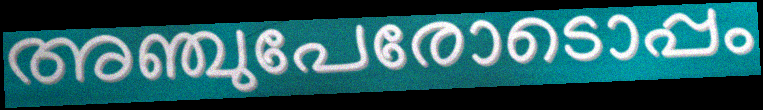
അഞ്ചുപേരോടൊപ്പം